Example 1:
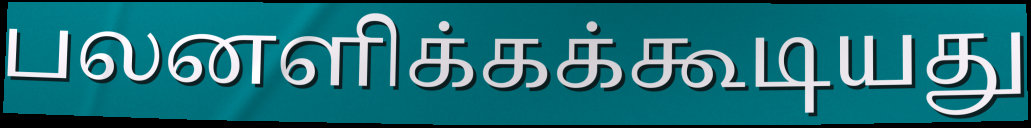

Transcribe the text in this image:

பலனளிக்கக்கூடியது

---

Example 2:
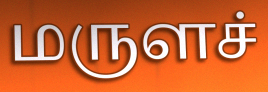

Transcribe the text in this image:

மருளச்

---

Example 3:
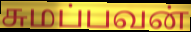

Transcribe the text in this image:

சுமப்பவன்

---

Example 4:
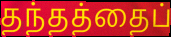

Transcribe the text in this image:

தந்தத்தைப்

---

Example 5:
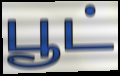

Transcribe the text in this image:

பூட்